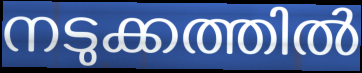
നടുക്കത്തിൽ